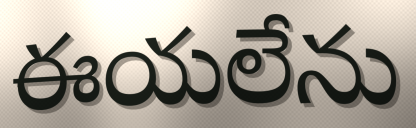
ఈయలేను